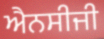
ਐਨਸੀਜੀ